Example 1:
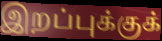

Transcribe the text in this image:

இறப்புக்குக்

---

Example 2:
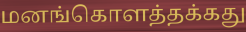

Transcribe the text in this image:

மனங்கொளத்தக்கது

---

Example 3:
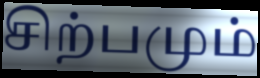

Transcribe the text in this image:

சிற்பமும்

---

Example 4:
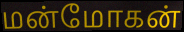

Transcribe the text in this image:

மன்மோகன்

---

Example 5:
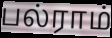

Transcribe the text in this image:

பல்ராம்